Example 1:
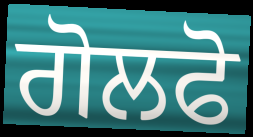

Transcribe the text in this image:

ਗੋਲਫੋ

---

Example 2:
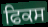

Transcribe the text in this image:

ਫਿਕਸ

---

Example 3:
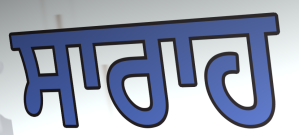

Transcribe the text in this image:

ਸਾਰਾਹ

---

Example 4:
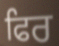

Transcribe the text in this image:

ਫਿਰ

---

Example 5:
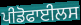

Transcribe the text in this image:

ਪੀਡੋਫਾਈਲਸ